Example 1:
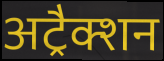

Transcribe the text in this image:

अट्रैक्शन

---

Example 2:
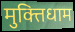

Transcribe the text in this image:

मुक्तिधाम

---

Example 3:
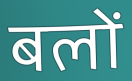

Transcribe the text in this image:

बलों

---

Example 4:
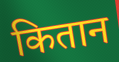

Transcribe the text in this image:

कितान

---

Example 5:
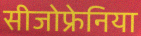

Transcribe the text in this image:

सीजोफ्रेनिया